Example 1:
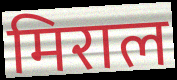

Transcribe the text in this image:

मिराल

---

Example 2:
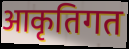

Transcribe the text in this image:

आकृतिगत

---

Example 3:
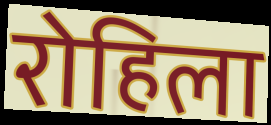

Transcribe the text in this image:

रोहिला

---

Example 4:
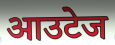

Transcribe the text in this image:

आउटेज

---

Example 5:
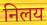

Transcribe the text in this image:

निलय